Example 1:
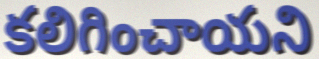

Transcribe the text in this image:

కలిగించాయని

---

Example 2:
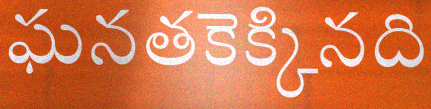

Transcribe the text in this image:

ఘనతకెక్కినది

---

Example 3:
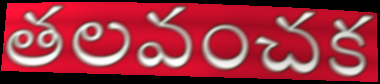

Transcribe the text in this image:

తలవంచక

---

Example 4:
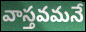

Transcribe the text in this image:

వాస్తవమనే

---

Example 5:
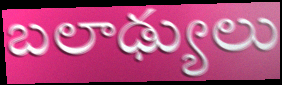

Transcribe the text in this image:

బలాఢ్యులు